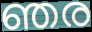
ഞര